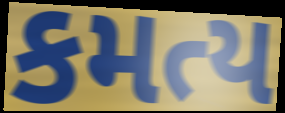
કમત્ય